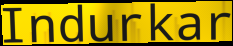
Indurkar